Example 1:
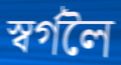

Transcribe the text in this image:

স্বৰ্গলৈ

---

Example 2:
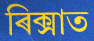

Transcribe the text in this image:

ৰিক্সাত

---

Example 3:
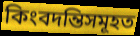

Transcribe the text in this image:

কিংবদন্তিসমূহত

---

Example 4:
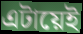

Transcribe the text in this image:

এটায়েই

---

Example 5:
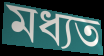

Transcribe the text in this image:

মধ্যত